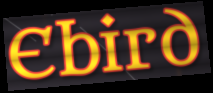
Ebird